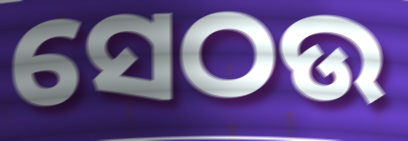
ସେଠଉ